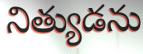
నిత్యుడను